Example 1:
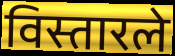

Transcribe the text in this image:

विस्तारले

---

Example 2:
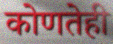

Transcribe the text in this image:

कोणतेही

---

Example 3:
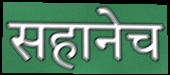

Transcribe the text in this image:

सहानेच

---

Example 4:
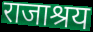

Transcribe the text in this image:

राजाश्रय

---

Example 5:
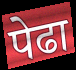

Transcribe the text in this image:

पेढा